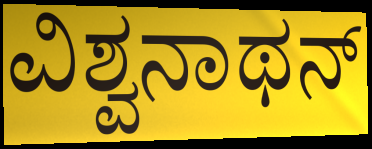
ವಿಶ್ವನಾಥನ್